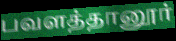
பவளத்தானூர்